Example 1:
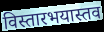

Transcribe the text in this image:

विस्तारभयास्तव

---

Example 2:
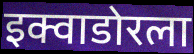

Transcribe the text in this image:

इक्वाडोरला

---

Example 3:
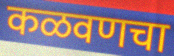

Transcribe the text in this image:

कळवणचा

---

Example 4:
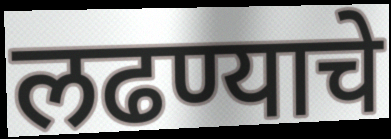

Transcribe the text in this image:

लढण्याचे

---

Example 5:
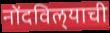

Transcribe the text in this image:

नोंदविल्याची